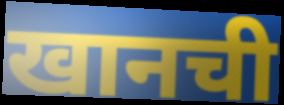
खानची